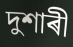
দুশাৰী